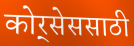
कोर्सेससाठी